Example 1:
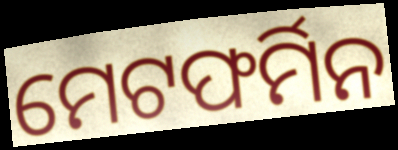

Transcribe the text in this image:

ମେଟଫର୍ମିନ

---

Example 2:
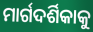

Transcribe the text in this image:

ମାର୍ଗଦର୍ଶିକାକୁ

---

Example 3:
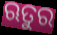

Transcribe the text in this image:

ଋତୁର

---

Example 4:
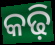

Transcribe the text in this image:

କଢ଼ି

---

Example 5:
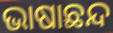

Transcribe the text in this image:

ଭାଷାଛନ୍ଦ